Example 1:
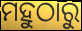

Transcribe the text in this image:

ମହୁଠାରୁ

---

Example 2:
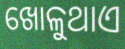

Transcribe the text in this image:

ଖୋଳୁଥାଏ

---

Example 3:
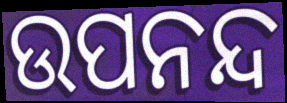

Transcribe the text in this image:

ଉପନନ୍ଦ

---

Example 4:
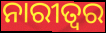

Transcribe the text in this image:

ନାରୀତ୍ୱର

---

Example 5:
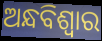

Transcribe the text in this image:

ଅନ୍ଧବିଶ୍ୱାର